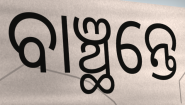
ବାଞ୍ଛନ୍ତେ